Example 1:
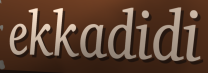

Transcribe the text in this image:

ekkadidi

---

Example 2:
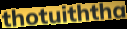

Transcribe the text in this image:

thotuiththa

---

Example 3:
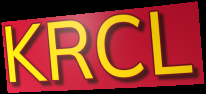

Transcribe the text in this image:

KRCL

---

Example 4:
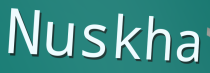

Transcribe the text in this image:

Nuskha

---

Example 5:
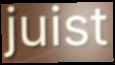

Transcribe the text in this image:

juist